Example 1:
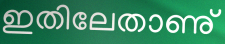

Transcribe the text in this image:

ഇതിലേതാണു്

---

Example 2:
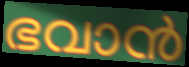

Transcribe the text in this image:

ഭവാൻ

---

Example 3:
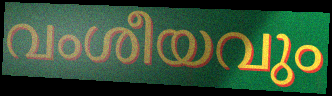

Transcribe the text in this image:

വംശീയവും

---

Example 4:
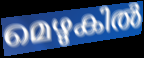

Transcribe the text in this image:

മെഴുകിൽ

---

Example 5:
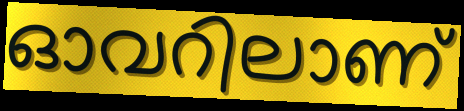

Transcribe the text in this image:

ഓവറിലാണ്